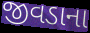
જીવડાના